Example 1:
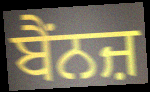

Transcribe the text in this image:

ਬੈਂਨਜ਼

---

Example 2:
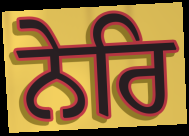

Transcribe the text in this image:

ਨੇਰਿ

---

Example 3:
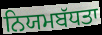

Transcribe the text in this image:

ਨਿਯਮਬੱਧਤਾ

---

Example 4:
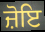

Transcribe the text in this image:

ਜ਼ੋਇ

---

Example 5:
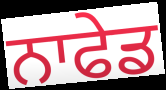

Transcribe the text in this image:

ਨਾਫੇਡ